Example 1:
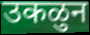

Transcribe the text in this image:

उकळुन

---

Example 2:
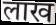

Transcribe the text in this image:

लाख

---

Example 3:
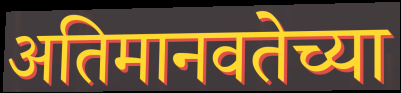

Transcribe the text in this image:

अतिमानवतेच्या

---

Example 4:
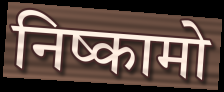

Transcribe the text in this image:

निष्कामो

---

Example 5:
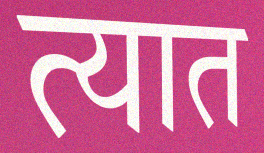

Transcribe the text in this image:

त्यात